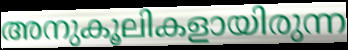
അനുകൂലികളായിരുന്ന